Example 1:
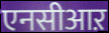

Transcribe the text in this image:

एनसीआऱ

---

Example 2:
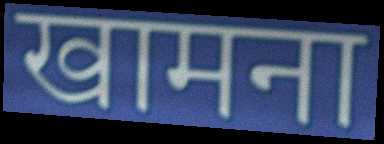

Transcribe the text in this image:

खामना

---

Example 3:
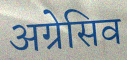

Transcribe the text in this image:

अग्रेसिव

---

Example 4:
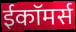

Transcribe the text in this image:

ईकॉमर्स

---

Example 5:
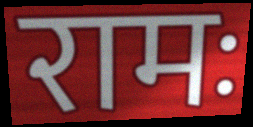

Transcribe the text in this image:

रामः